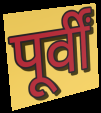
पूर्वीं